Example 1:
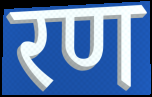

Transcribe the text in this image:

रण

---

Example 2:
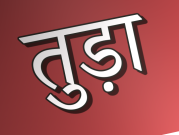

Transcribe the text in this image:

तुड़ा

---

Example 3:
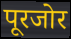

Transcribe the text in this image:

पूरजोर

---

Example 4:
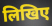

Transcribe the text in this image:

लिखिए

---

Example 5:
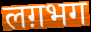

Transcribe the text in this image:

लग़भग